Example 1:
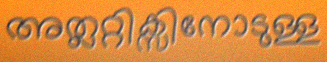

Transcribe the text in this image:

അത്ലറ്റിക്സിനോടുള്ള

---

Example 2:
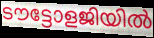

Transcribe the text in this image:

ടൗട്ടോളജിയിൽ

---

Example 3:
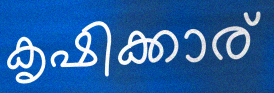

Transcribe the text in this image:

കൃഷിക്കാര്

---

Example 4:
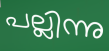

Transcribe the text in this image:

പല്ലിന്നു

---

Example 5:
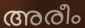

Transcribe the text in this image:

അരീം